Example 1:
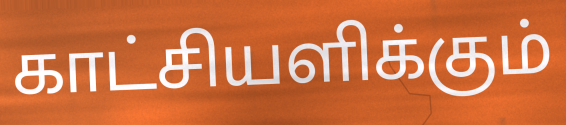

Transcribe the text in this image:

காட்சியளிக்கும்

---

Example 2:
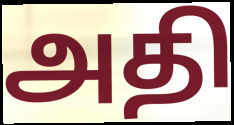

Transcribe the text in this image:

அதி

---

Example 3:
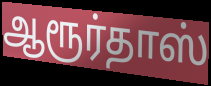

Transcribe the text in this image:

ஆரூர்தாஸ்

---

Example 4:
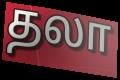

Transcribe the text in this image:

தலா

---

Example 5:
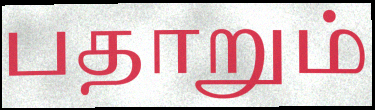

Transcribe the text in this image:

பதாறும்